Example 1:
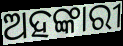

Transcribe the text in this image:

ଅହଙ୍କାରୀ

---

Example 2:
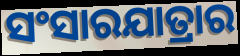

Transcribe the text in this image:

ସଂସାରଯାତ୍ରାର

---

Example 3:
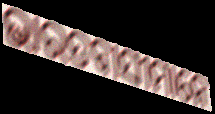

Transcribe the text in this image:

ଭାରତବାସୀମାନେ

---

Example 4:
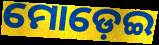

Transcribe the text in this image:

ମୋଡ଼େଇ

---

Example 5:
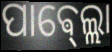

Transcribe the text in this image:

ପାଵ୍ଲ୍ଲୋ